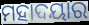
ମହାଦୟାର